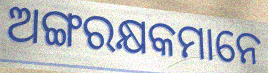
ଅଙ୍ଗରକ୍ଷକମାନେ